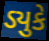
ડ્યુકે